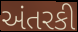
અંતરકી